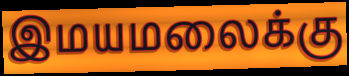
இமயமலைக்கு